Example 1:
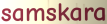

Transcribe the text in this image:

samskara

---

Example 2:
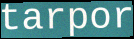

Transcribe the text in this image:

tarpor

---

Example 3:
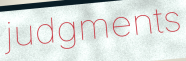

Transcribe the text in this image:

judgments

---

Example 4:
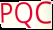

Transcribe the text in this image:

PQC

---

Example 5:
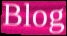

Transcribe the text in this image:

Blog